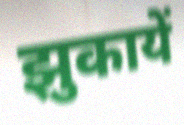
झुकायें